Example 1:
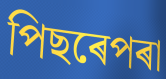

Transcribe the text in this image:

পিছৰেপৰা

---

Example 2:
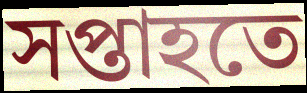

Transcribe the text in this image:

সপ্তাহতে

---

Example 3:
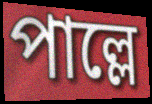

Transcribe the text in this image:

পাল্লে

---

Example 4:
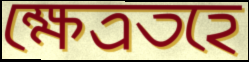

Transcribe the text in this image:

ক্ষেত্ৰতহে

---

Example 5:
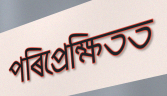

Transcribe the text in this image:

পৰিপ্ৰেক্ষিতত